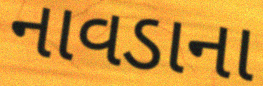
નાવડાના